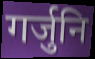
गर्जुनि